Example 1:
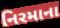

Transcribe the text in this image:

નિરમાના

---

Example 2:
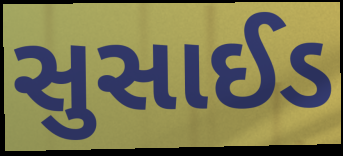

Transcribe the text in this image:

સુસાઈડ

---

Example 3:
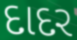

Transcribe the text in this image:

દાદર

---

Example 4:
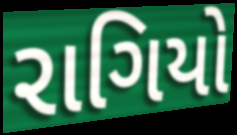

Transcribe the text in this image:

રાગિયો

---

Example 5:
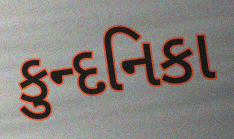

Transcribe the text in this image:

કુન્દનિકા